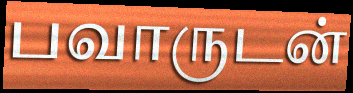
பவாருடன்